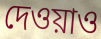
দেওয়াও